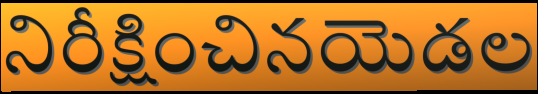
నిరీక్షించినయెడల